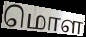
மொள